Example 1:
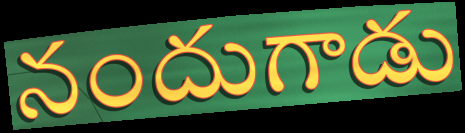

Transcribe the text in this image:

నందుగాడు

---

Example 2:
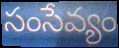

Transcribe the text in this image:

సంసేవ్యం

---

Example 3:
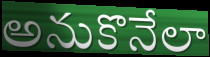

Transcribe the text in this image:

అనుకొనేలా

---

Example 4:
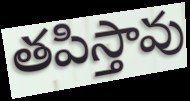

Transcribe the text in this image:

తపిస్తావు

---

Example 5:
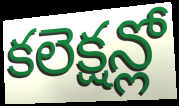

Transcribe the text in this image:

కలెక్షన్లో